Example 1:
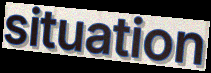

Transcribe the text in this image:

situation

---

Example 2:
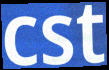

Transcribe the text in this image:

cst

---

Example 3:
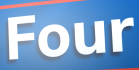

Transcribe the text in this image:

Four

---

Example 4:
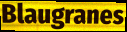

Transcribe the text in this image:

Blaugranes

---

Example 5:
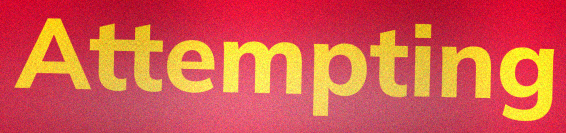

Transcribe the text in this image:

Attempting